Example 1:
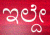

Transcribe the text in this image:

ಇಲ್ದೇ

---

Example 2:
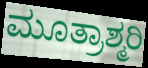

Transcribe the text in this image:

ಮೂತ್ರಾಶ್ಮರಿ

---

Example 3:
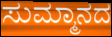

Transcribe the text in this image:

ಸುಮ್ಮಾನದ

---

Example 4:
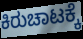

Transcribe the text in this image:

ಕಿರುಚಾಟಕ್ಕೆ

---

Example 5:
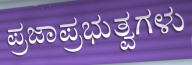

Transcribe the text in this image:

ಪ್ರಜಾಪ್ರಭುತ್ವಗಳು